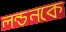
লন্ডনকে